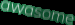
awasome